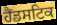
ਹੈਂਡਸਟਿਕ